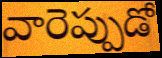
వారెప్పుడో